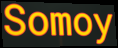
Somoy